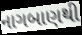
નાગબાણથી